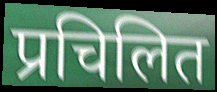
प्रचिलित